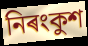
নিৰংকুশ